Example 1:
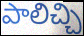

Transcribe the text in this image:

పాలిచ్చి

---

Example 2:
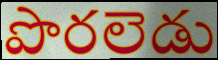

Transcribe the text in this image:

పొరలెడు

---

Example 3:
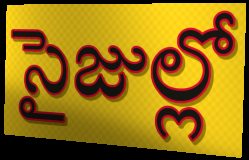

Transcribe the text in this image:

సైజుల్లో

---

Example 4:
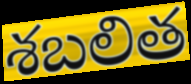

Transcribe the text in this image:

శబలిత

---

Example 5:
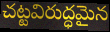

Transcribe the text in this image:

చట్టవిరుద్ధమైన